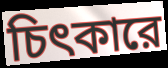
চিৎকারে